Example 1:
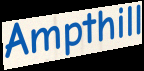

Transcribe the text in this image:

Ampthill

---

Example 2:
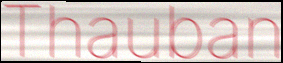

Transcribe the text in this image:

Thauban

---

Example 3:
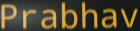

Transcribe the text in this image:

Prabhav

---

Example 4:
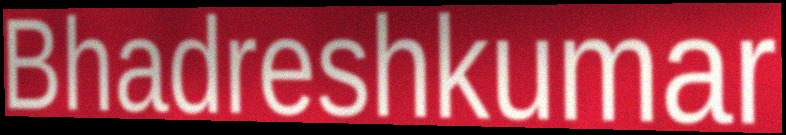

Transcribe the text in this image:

Bhadreshkumar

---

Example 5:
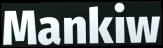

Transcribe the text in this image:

Mankiw